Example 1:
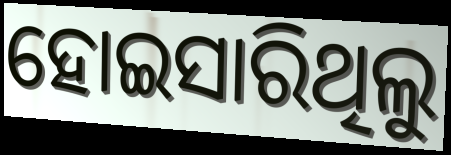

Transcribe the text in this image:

ହୋଇସାରିଥିଲୁ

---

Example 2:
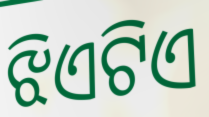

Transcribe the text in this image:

ଝିଏଟିଏ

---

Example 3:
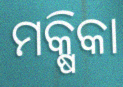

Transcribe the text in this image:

ମକ୍ଷିକା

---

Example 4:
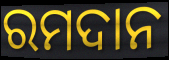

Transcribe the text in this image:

ରମଦାନ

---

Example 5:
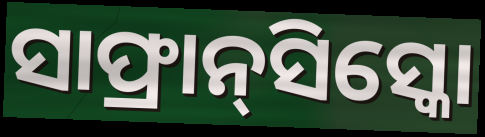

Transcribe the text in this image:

ସାଫ୍ରାନ୍‌ସିସ୍କୋ